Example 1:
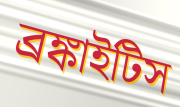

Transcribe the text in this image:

ব্রঙ্কাইটিস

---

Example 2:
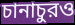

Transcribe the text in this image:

চানাচুরও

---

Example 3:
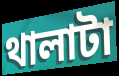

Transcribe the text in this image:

থালাটা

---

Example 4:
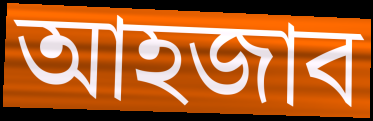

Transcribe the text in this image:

আহজাব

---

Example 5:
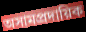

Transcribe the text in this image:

অসামপ্রদায়িক